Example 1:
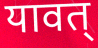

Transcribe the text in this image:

यावत्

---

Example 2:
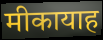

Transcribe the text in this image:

मीकायाह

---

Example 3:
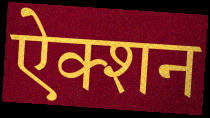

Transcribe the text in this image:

ऐक्शन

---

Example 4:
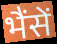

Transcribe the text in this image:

भैंसें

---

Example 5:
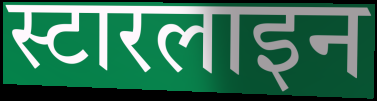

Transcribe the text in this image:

स्टारलाइन